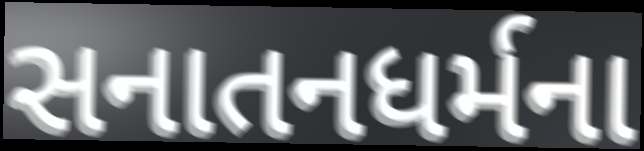
સનાતનધર્મના